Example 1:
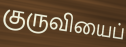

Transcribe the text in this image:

குருவியைப்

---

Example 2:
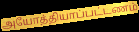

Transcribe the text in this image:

அயோத்தியாப்பட்டணம்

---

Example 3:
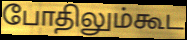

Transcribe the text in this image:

போதிலும்கூட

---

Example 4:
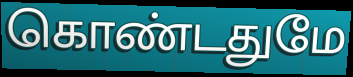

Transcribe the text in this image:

கொண்டதுமே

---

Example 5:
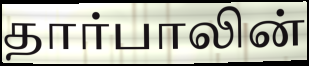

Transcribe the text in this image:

தார்பாலின்